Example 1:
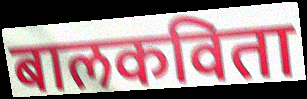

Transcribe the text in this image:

बालकविता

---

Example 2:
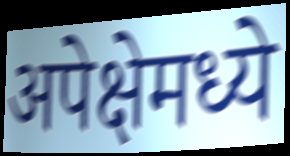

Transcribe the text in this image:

अपेक्षेमध्ये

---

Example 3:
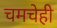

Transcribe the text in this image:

चमचेही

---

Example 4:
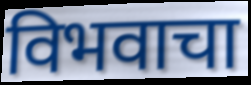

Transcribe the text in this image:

विभवाचा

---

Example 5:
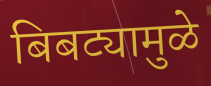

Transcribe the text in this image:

बिबट्यामुळे